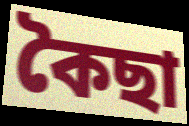
কৈছা